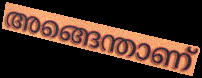
അങ്ങെന്താണ്